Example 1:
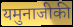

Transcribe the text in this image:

यमुनाजीकी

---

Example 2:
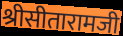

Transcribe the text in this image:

श्रीसीतारामजी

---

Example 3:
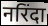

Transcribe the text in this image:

नरिंदा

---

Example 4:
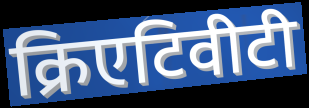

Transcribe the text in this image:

क्रिएटिवीटी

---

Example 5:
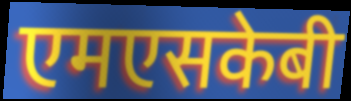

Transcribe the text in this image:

एमएसकेबी